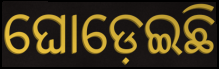
ଘୋଡ଼େଇଛି